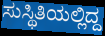
ಸುಸ್ಥಿತಿಯಲ್ಲಿದ್ದ